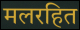
मलरहित